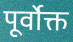
पूर्वोक्त